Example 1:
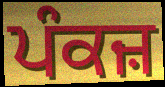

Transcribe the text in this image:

ਪੰਕਜ਼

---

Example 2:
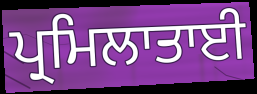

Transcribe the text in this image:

ਪ੍ਰਮਿਲਾਤਾਈ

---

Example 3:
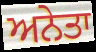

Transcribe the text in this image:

ਅਨੇਤਾ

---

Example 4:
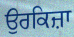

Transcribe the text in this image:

ਉਰਕਿਜ਼ਾ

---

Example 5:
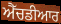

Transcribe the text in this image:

ਐੱਚਡੀਆਰ